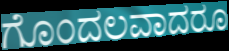
ಗೊಂದಲವಾದರೂ